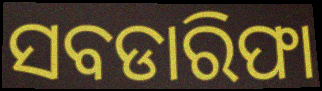
ସବଡାରିଫା